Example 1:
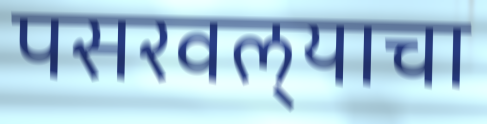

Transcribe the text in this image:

पसरवल्याचा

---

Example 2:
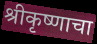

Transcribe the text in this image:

श्रीकृष्णाचा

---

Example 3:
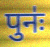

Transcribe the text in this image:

पुनः॑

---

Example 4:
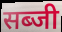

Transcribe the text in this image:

सब्जी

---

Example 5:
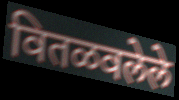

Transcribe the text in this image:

वितळवलेले